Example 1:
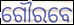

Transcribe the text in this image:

ଗୌରବେ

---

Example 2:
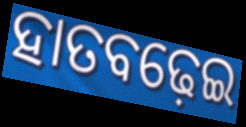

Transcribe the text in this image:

ହାତବଢ଼େଇ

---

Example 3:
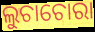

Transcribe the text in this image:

ଲୁଚାଚୋରା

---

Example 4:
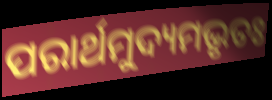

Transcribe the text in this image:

ପରାର୍ଥମୁଦ୍ୟମଭୃତଃ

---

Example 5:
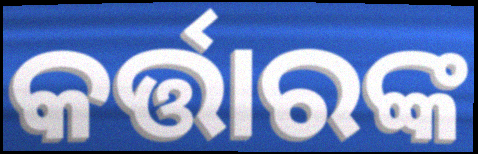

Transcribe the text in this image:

କର୍ତ୍ତାରଙ୍କ